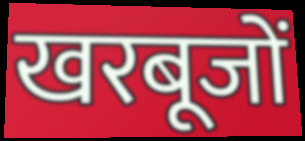
खरबूजों